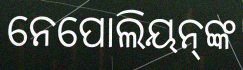
ନେପୋଲିୟନ୍‍ଙ୍କ